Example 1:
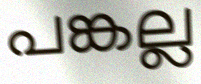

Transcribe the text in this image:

പങ്കല്ല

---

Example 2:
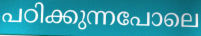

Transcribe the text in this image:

പഠിക്കുന്നപോലെ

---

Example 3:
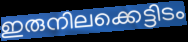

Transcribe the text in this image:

ഇരുനിലക്കെട്ടിടം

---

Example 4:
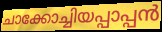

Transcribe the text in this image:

ചാക്കോച്ചിയപ്പാപ്പൻ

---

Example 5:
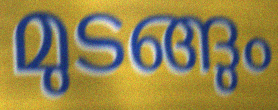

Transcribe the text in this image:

മുടങ്ങും